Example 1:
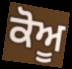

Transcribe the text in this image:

ਕੋਅੂ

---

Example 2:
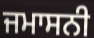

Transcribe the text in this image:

ਜਮਾਸਨੀ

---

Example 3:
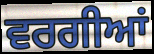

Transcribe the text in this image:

ਵਰਗੀਆਂ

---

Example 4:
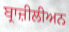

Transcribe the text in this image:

ਬ੍ਰਾਜ਼ੀਲੀਅਨ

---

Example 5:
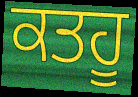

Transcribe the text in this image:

ਕਤਹੂ